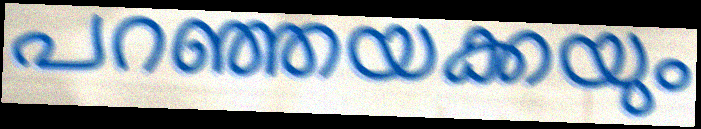
പറഞ്ഞയക്കയും